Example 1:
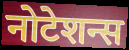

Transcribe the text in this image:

नोटेशन्स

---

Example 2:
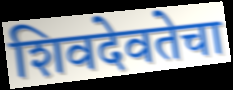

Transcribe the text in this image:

शिवदेवतेचा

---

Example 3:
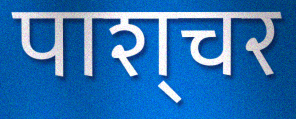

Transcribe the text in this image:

पाश्चर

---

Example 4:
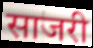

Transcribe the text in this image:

साजरी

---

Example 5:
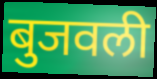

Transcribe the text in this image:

बुजवली